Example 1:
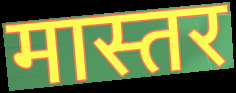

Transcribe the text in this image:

मास्तर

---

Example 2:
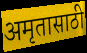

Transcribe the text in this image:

अमृतासाठी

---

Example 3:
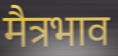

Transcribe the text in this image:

मैत्रभाव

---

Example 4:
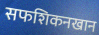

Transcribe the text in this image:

सफशिकनखान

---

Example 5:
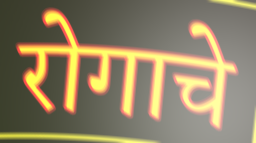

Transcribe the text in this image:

रोगाचे